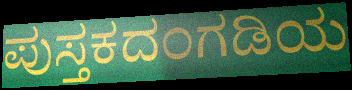
ಪುಸ್ತಕದಂಗಡಿಯ